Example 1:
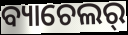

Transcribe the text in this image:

ବ୍ୟାଚେଲର୍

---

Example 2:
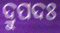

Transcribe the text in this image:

ଦ୍ରୁପଦଃ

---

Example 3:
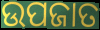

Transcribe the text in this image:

ଉପଜାତ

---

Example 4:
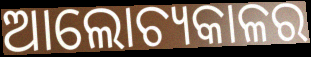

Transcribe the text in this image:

ଆଲୋଚ୍ୟକାଳର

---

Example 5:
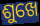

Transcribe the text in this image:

ଶୁଖେ